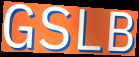
GSLB